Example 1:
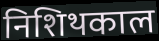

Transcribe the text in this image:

निशिथकाल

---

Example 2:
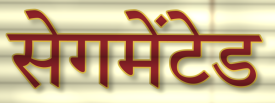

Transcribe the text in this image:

सेगमेंटेड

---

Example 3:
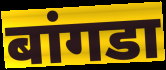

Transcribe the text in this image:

बांगडा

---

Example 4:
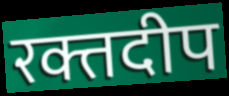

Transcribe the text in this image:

रक्तदीप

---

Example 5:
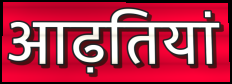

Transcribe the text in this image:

आढ़तियां